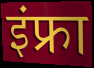
इंफ्रा